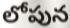
లోపున